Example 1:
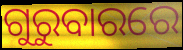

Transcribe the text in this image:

ଗୁରୁବାରରେ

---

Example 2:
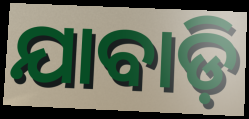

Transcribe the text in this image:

ଯାବାଡ଼ି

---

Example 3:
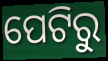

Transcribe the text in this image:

ପେଟିରୁ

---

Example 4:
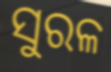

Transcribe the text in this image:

ସୁରଳ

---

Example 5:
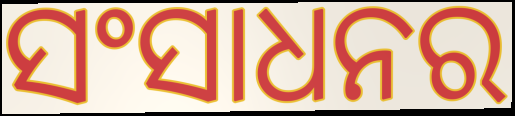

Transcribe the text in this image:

ସଂସାଧନର